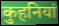
कुहनियां